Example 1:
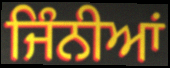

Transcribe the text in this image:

ਜਿੰਨੀਆਂ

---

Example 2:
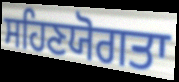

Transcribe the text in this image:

ਸਹਿਣਯੋਗਤਾ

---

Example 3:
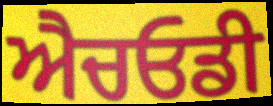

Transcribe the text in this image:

ਐਚਓਡੀ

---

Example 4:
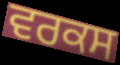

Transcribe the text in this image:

ਵਰਕਸ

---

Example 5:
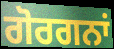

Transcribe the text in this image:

ਗੋਰਗਨਾਂ